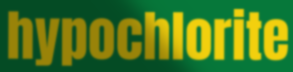
hypochlorite